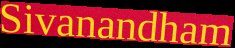
Sivanandham